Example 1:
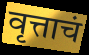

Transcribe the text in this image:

वृत्ताचं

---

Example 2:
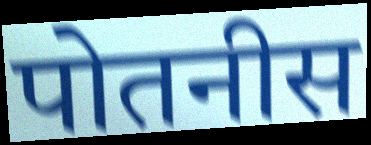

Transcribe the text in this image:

पोतनीस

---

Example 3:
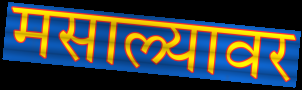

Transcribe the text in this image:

मसाल्यावर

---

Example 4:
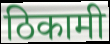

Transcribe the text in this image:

ठिकामी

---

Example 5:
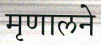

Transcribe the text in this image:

मृणालने